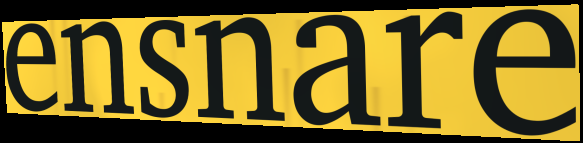
ensnare